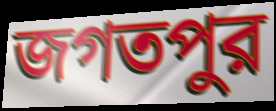
জগতপুর